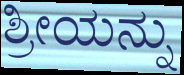
ಶ್ರೀಯನ್ನು